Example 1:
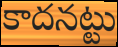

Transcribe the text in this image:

కాదనట్టు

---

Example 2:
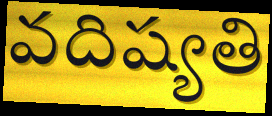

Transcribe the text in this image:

వదిష్యతి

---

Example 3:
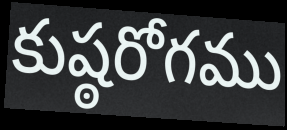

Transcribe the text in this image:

కుష్ఠరోగము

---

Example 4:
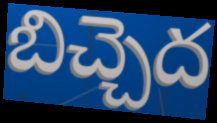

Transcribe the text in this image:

బిచ్చెద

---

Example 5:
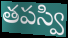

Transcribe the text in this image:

తపస్వి